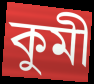
কুমী